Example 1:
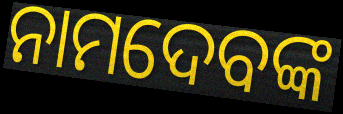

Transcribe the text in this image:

ନାମଦେବଙ୍କ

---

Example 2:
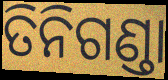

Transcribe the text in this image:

ତିନିଗଣ୍ଡା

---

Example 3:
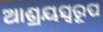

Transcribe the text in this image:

ଆଶ୍ରୟସ୍ୱରୂପ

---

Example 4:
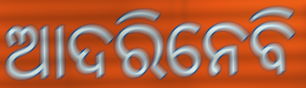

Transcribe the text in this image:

ଆଦରିନେବି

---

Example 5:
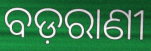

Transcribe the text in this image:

ବଡ଼ରାଣୀ